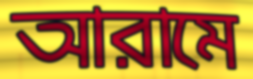
আরামে